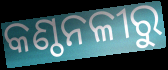
କଣ୍ଠନଳୀରୁ